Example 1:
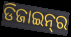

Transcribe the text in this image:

ଡିଜାଇନ୍‌ର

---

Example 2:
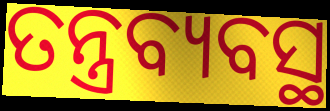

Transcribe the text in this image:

ତନ୍ତ୍ରବ୍ୟବସ୍ଥ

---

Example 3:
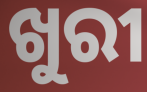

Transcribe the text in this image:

ଖୁରୀ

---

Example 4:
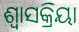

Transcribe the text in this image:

ଶ୍ବାସକ୍ରିୟା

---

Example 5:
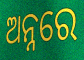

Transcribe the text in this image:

ଅନ୍ନରେ